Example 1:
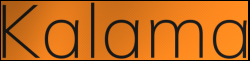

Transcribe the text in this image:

Kalama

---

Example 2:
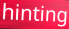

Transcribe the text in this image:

hinting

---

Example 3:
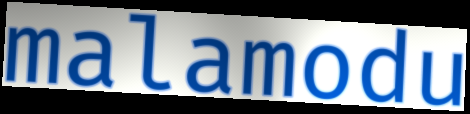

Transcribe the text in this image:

malamodu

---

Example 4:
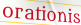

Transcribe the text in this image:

orationis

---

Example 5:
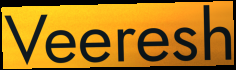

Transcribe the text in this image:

Veeresh